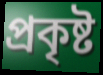
প্ৰকৃষ্ট